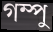
গম্পু